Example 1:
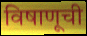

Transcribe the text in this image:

विषाणूची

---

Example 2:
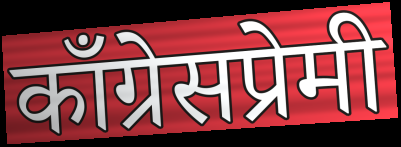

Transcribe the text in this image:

काँग्रेसप्रेमी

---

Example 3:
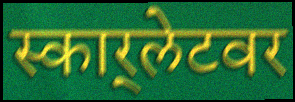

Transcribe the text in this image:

स्कार्लेटवर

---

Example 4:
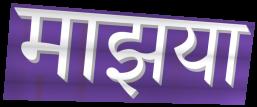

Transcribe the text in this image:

माझया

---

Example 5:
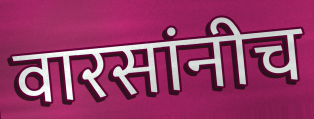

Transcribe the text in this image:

वारसांनीच